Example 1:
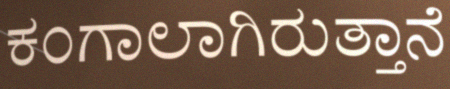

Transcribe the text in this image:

ಕಂಗಾಲಾಗಿರುತ್ತಾನೆ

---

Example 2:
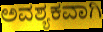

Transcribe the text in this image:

ಅವಶ್ಯಕವಾಗಿ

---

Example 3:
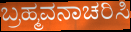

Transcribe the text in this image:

ಬ್ರಹ್ಮವನಾಚರಿಸಿ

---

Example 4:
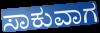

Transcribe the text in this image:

ಸಾಕುವಾಗ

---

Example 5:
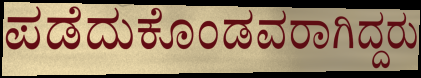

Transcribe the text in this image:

ಪಡೆದುಕೊಂಡವರಾಗಿದ್ದರು